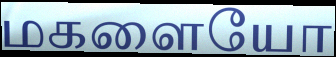
மகளையோ